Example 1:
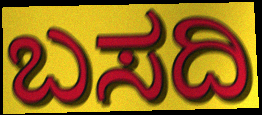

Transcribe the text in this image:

ಬಸದಿ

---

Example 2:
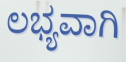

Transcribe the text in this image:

ಲಭ್ಯವಾಗಿ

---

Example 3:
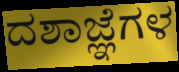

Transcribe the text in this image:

ದಶಾಜ್ಞೆಗಳ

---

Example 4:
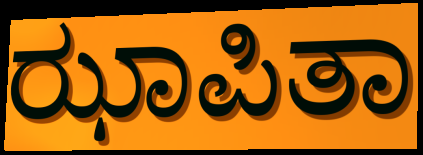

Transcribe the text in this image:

ಝಾಪಿತಾ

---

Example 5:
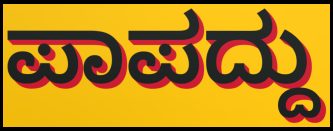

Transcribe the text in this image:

ಪಾಪದ್ದು